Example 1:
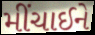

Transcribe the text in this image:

મીંચાઈને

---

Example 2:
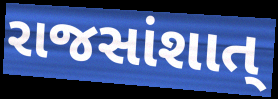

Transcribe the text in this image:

રાજસાંશાત્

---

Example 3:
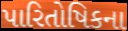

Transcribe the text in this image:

પારિતોષિકના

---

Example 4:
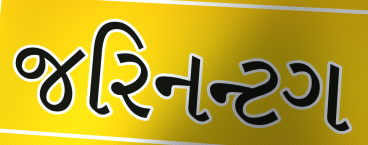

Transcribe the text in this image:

જરિનન્ટગ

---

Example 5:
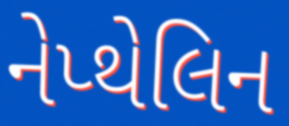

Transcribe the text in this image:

નેપ્થેલિન